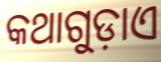
କଥାଗୁଡ଼ାଏ